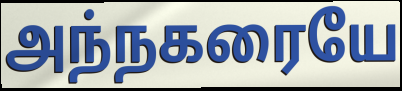
அந்நகரையே